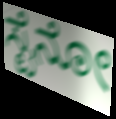
ಸ್ಟೆನೋ